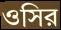
ওসির